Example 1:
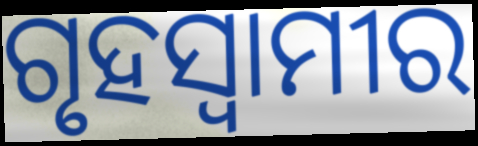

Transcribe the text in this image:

ଗୃହସ୍ୱାମୀର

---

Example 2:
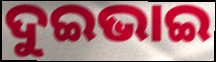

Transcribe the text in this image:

ଦୁଇଭାଇ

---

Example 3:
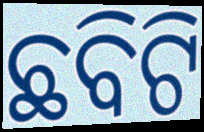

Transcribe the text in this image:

ଛବିଟି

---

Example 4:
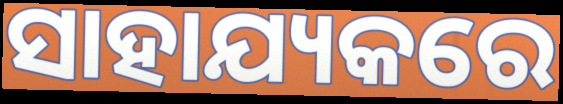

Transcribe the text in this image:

ସାହାଯ୍ୟକରେ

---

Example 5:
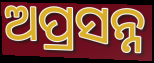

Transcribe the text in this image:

ଅପ୍ରସନ୍ନ